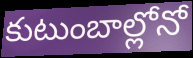
కుటుంబాల్లోనో